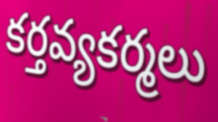
కర్తవ్యకర్మలు